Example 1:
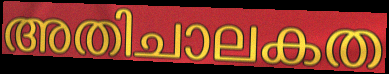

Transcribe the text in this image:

അതിചാലകത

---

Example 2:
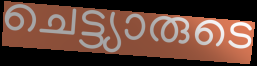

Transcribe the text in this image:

ചെട്ട്യാരുടെ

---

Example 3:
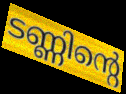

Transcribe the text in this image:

ടണ്ണിന്റെ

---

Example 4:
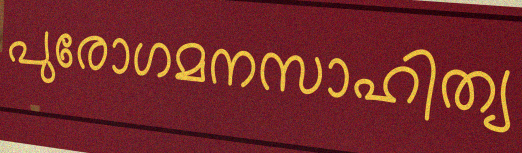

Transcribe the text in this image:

പുരോഗമനസാഹിത്യ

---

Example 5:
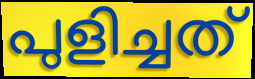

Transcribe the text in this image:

പുളിച്ചത്